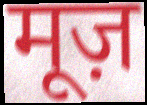
मूज़